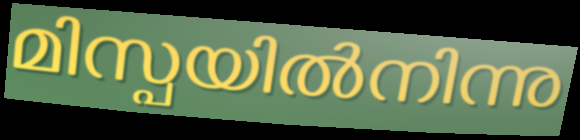
മിസ്പയിൽനിന്നു